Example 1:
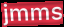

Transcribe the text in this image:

jmms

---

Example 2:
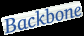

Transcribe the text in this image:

Backbone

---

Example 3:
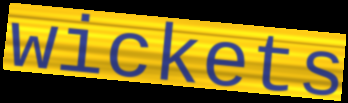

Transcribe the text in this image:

wickets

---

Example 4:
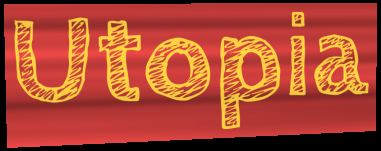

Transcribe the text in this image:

Utopia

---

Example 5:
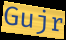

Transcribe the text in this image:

Gujr